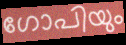
ഗോപിയും